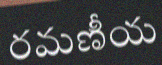
రమణీయ